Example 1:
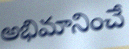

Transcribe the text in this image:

అభిమానించే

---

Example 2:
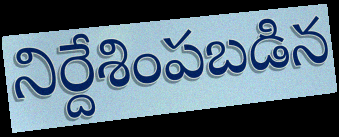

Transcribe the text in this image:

నిర్దేశింపబడిన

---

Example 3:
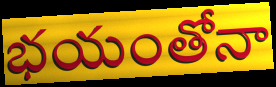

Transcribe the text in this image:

భయంతోనా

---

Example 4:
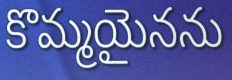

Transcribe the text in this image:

కొమ్మయైనను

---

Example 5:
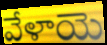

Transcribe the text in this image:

వేళాయె